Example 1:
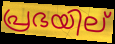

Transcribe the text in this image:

പ്രഭയില്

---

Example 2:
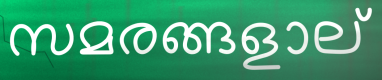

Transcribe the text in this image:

സമരങ്ങളാല്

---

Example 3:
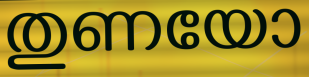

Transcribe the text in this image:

തുണയോ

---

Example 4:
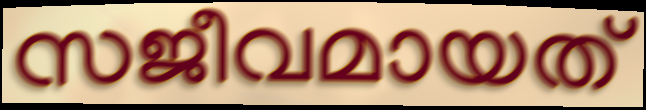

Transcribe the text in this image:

സജീവമായത്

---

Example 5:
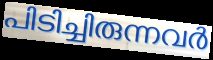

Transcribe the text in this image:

പിടിച്ചിരുന്നവർ